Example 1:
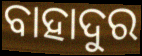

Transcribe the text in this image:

ବାହାଦୁର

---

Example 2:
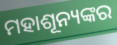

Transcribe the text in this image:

ମହାଶୂନ୍ୟଙ୍କର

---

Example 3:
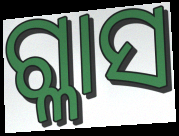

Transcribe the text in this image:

ଗ୍ଳାସ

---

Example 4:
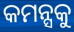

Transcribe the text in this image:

କମନ୍ସକୁ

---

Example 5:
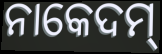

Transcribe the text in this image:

ନାକେଦମ୍